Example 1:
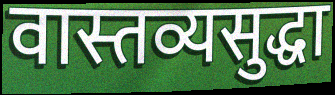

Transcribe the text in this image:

वास्तव्यसुद्धा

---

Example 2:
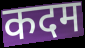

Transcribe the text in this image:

कदम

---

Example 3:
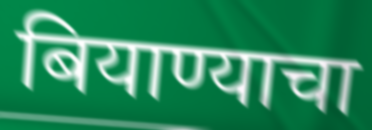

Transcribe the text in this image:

बियाण्याचा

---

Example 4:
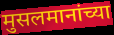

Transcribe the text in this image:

मुसलमानांच्या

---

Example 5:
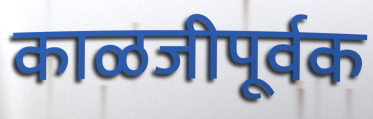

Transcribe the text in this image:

काळजीपूर्वक